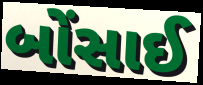
બોંસાઈ